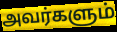
அவர்களும்